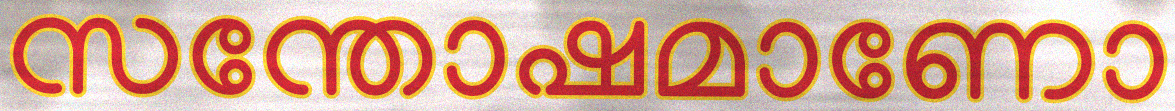
സന്തോഷമാണോ